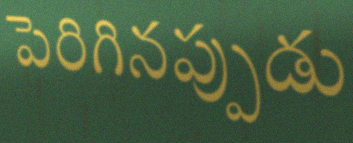
పెరిగినప్పుడు